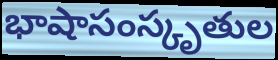
భాషాసంస్కృతుల